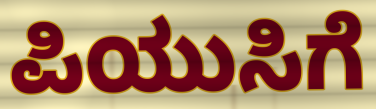
ಪಿಯುಸಿಗೆ